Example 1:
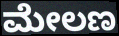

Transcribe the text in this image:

ಮೇಲಣ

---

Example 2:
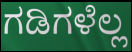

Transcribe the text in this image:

ಗಡಿಗಳೆಲ್ಲ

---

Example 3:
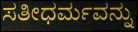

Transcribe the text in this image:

ಸತೀಧರ್ಮವನ್ನು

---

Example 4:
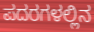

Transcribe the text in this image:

ಪದರಗಳಲ್ಲಿನ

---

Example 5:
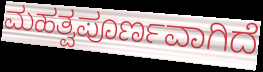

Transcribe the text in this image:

ಮಹತ್ವಪೂರ್ಣವಾಗಿದೆ